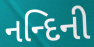
નન્દિની